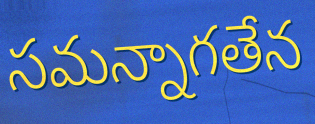
సమన్నాగతేన